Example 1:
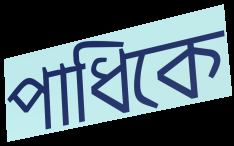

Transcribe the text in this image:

পাধিকে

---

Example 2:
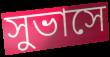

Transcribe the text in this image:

সুভাসে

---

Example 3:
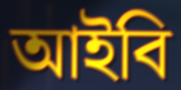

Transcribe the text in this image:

আইবি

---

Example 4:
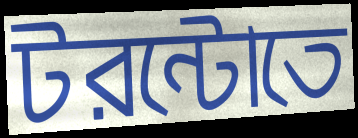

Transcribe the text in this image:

টরন্টোতে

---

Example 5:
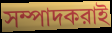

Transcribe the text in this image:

সম্পাদকরাই